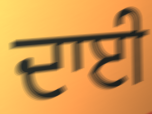
ਦਾਈ